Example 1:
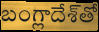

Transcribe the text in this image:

బంగ్లాదేశ్‌తో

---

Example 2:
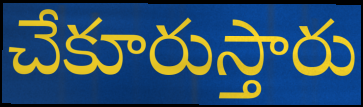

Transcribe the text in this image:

చేకూరుస్తారు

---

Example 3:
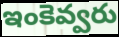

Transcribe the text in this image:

ఇంకెవ్వరు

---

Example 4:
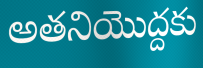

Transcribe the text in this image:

అతనియొద్దకు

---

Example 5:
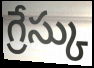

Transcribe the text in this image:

గ్రేస్కు